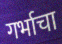
गर्भाचा